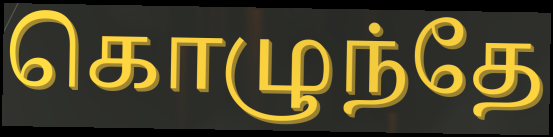
கொழுந்தே